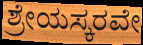
ಶ್ರೇಯಸ್ಕರವೇ